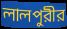
লালপুরীর